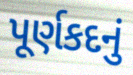
પૂર્ણકદનું